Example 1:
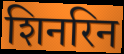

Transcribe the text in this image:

शिनरिन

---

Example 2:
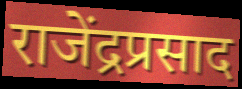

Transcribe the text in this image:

राजेंद्रप्रसाद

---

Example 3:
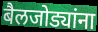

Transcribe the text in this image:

बैलजोड्यांना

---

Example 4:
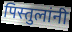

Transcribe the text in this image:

पिस्तुलांनी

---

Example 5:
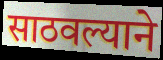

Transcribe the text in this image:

साठवल्याने